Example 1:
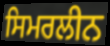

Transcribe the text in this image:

ਸਿਮਰਲੀਨ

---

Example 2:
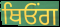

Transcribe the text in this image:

ਥਿਓਂਗ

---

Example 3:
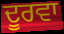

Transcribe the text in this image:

ਦੂਰਵਾ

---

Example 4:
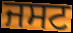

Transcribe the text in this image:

ਜਸਟ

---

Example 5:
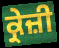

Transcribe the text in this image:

ਕ੍ਰੇਜ਼ੀ